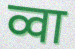
व्वा